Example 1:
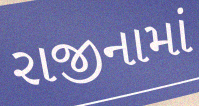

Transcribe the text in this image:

રાજીનામાં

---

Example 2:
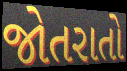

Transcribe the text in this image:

જોતરાતો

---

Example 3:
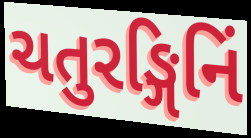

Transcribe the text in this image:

ચતુરઙ્ગિનિં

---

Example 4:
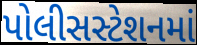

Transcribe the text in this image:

પોલીસસ્ટેશનમાં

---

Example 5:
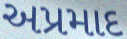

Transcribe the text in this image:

અપ્રમાદ